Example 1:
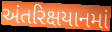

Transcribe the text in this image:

અંતરિક્ષયાનમાં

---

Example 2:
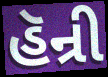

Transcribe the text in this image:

હૅન્રી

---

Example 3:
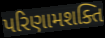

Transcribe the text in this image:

પરિણામશક્તિ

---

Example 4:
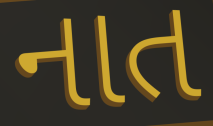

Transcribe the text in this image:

નાત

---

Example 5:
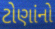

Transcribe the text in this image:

ટોણાંનો